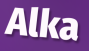
Alka